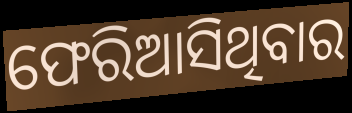
ଫେରିଆସିଥିବାର